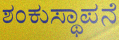
ಶಂಕುಸ್ಥಾಪನೆ